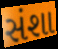
સંશા